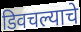
डिवचल्याचे